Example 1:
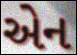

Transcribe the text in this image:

એન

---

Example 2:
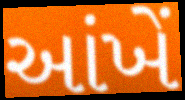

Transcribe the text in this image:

આંખેં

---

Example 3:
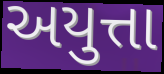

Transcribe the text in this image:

અયુત્તા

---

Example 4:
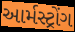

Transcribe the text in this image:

આર્મસ્ટ્રોંગ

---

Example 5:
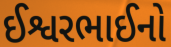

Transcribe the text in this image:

ઈશ્વરભાઈનો